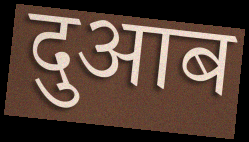
दुआब